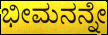
ಭೀಮನನ್ನೇ